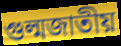
গুল্মজাতীয়